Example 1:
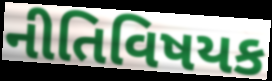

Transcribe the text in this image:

નીતિવિષયક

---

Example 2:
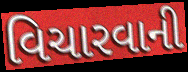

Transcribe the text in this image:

વિચારવાની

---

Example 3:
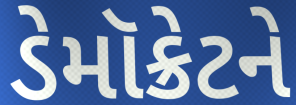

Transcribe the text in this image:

ડેમૉક્રેટને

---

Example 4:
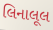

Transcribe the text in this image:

લિનાલૂલ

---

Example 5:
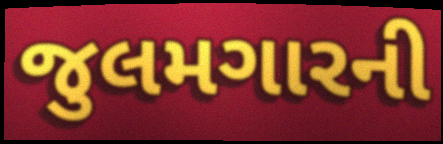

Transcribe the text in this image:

જુલમગારની